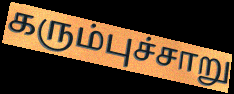
கரும்புச்சாறு